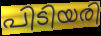
പിടിയരി